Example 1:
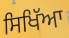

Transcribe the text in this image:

ਸਿਖਿੱਆ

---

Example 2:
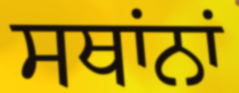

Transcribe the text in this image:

ਸਥਾਂਨਾਂ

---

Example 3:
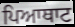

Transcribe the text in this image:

ਪਿਆਥਾਟ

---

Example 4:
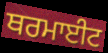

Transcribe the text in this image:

ਥਰਮਾਈਟ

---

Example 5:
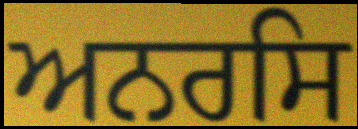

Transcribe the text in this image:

ਅਨਰਸਿ